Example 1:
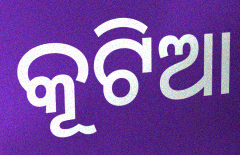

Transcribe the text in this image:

କୂଟିଆ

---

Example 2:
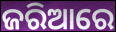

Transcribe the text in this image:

ଜରିଆରେ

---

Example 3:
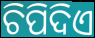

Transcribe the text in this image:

ଚିପିଦିଏ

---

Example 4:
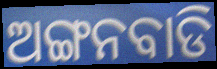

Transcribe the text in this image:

ଅଙ୍ଗନବାଡି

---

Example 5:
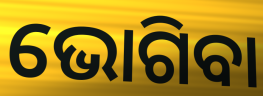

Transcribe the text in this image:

ଭୋଗିବା